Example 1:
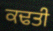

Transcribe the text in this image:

ਕਢਤੀ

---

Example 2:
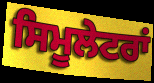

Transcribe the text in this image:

ਸਿਮੂਲੇਟਰਾਂ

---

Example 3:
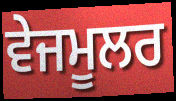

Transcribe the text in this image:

ਵੇਜਮੂਲਰ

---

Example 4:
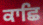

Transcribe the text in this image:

ਕਾਛਿ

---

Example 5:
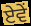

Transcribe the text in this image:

ਏਵੇਂ